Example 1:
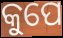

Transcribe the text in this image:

କୁପେ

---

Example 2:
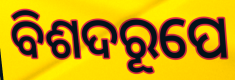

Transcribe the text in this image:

ବିଶଦରୂପେ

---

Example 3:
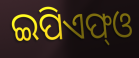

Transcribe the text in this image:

ଇପିଏଫ୍ଓ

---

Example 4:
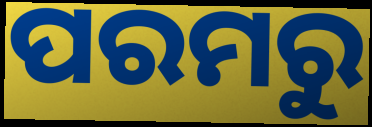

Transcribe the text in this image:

ପରମରୁ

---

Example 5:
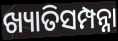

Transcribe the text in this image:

ଖ୍ୟାତିସମ୍ପନ୍ନା